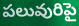
పలువురిపై